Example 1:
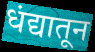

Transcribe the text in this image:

धंद्यातून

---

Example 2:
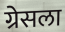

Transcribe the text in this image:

ग्रेसला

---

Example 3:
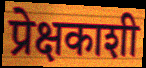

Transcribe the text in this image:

प्रेक्षकाशी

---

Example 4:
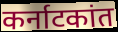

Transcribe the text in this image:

कर्नाटकांत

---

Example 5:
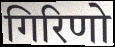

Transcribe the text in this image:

गिरिणो